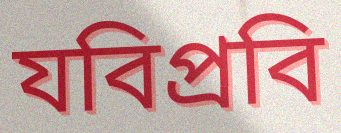
যবিপ্রবি